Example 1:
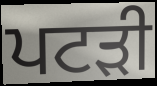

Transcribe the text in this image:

ਪਟੜੀ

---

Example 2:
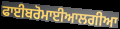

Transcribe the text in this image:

ਫਾਈਬਰੋਮਾਈਆਲਗੀਆ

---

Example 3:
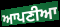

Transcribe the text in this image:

ਆਪਣੀਆ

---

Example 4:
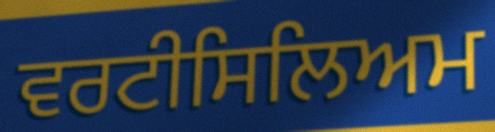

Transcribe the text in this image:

ਵਰਟੀਸਿਲਿਅਮ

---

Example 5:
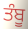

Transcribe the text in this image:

ਤੰਬੂ